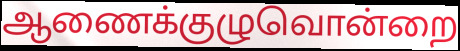
ஆணைக்குழுவொன்றை